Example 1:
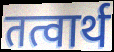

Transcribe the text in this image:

तत्वार्थ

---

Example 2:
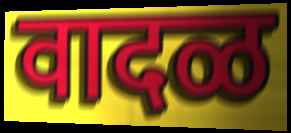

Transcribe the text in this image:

वादळ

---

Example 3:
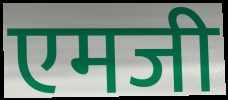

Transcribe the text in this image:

एमजी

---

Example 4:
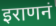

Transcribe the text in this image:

इराणनं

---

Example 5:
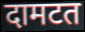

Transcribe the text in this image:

दामटत